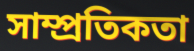
সাম্প্রতিকতা